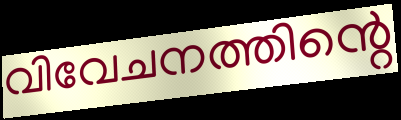
വിവേചനത്തിന്റെ